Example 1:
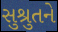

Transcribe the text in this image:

સુશ્રુતને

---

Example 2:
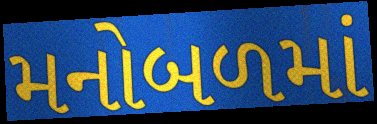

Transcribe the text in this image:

મનોબળમાં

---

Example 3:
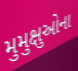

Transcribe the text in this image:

મુમુક્ષુઓના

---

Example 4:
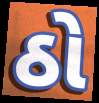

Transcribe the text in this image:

ઠો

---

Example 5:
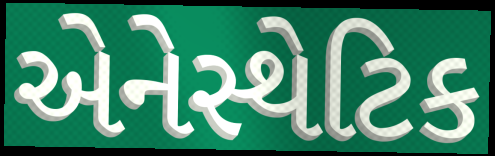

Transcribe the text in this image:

એનેસ્થેટિક